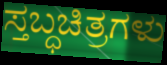
ಸ್ತಬ್ಧಚಿತ್ರಗಳು